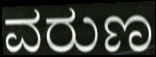
ವರುಣ